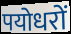
पयोधरों